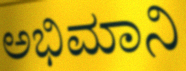
ಅಭಿಮಾನಿ